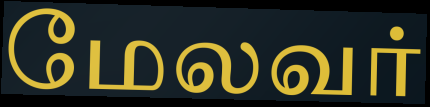
மேலவர்